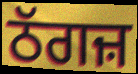
ਠੱਗਜ਼